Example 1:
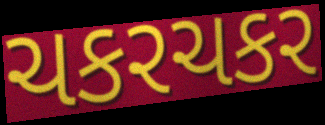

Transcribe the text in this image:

ચકરચકર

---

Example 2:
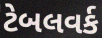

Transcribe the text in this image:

ટેબલવર્ક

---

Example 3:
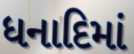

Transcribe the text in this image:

ધનાદિમાં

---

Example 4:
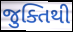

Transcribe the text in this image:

જુક્તિથી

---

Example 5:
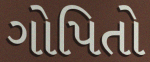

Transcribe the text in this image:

ગોપિતો